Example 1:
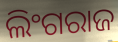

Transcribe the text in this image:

ଲିଂଗରାଜ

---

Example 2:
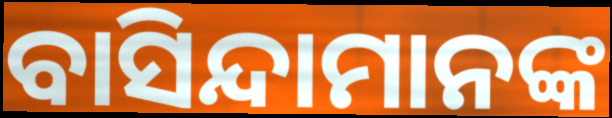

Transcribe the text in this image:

ବାସିନ୍ଦାମାନଙ୍କ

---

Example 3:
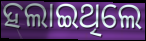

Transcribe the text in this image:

ହଲାଇଥିଲେ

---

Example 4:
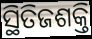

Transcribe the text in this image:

ସ୍ଥିତିଜଶକ୍ତି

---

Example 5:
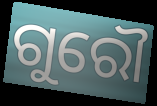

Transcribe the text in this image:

ଗୁରୌ